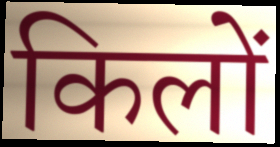
किलों